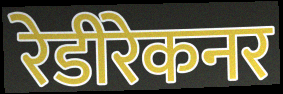
रेडीरेकनर